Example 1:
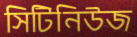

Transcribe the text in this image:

সিটিনিউজ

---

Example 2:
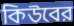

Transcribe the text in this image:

কিউবের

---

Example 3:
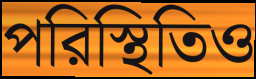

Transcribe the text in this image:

পরিস্থিতিও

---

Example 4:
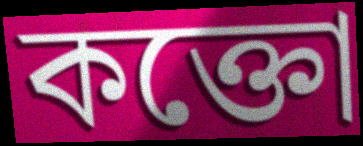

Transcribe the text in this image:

কক্তো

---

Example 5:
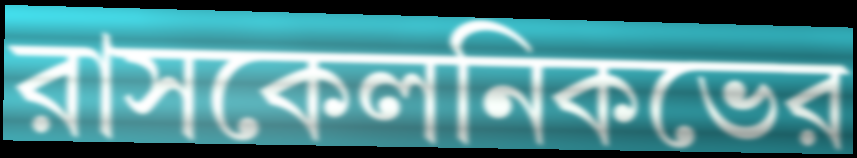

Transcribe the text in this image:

রাসকেলনিকভের